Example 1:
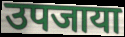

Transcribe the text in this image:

उपजाया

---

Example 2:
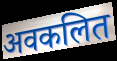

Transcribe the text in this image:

अवकलित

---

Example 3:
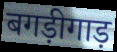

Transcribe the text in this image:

बगड़ीगाड़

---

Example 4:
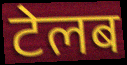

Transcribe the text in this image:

टेलब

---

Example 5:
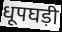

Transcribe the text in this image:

धूपघड़ी